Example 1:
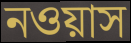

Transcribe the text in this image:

নওয়াস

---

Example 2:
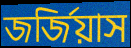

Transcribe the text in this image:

জর্জিয়াস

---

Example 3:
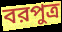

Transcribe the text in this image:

বরপুত্র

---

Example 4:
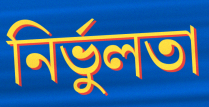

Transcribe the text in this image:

নির্ভুলতা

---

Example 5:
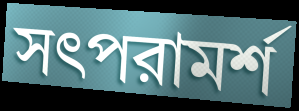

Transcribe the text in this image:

সৎপরামর্শ